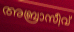
അബ്രാസീവ്